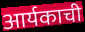
आर्यकाची